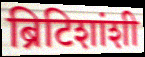
ब्रिटिशांशी